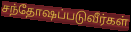
சந்தோஷப்படுவீர்கள்